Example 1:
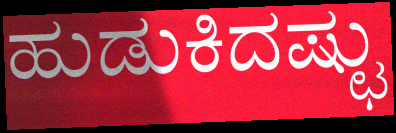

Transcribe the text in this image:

ಹುಡುಕಿದಷ್ಟು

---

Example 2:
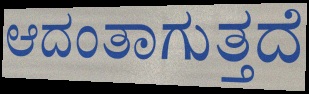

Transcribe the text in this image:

ಆದಂತಾಗುತ್ತದೆ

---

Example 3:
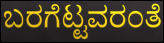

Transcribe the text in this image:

ಬರಗೆಟ್ಟವರಂತೆ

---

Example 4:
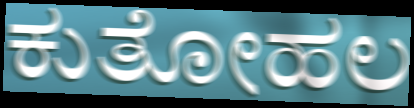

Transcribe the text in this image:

ಕುತೋಹಲ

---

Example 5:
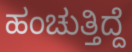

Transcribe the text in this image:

ಹಂಚುತ್ತಿದ್ದೆ